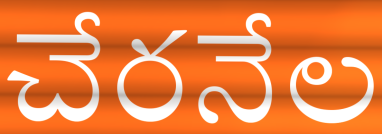
చేరనేల